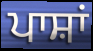
ਪਾਸ਼ਾਂ